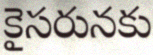
కైసరునకు